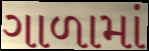
ગાળામાં